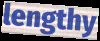
lengthy